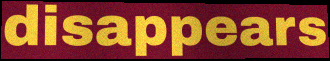
disappears